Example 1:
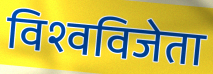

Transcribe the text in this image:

विश्वविजेता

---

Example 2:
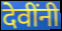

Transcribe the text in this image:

देवींनी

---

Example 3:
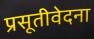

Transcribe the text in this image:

प्रसूतीवेदना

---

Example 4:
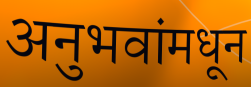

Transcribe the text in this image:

अनुभवांमधून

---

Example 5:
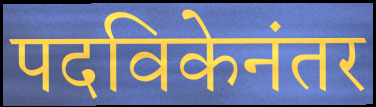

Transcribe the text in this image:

पदविकेनंतर